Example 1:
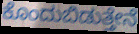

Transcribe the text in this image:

ಕೊಂದುಬಿಡುತ್ತೇನೆ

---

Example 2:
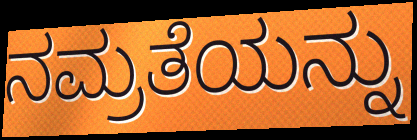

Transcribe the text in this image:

ನಮ್ರತೆಯನ್ನು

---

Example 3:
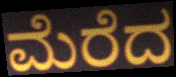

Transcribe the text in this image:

ಮೆರೆದ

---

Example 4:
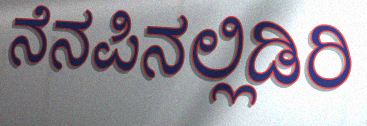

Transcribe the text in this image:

ನೆನಪಿನಲ್ಲಿಡಿರಿ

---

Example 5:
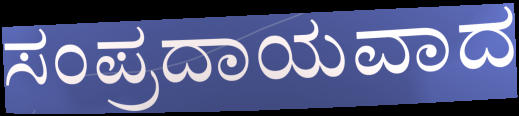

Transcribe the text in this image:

ಸಂಪ್ರದಾಯವಾದ